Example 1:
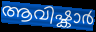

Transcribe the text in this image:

ആവിഷ്കാർ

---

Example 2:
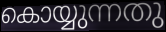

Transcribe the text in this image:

കൊയ്യുന്നതു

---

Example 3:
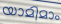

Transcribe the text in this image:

യാമിമാം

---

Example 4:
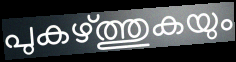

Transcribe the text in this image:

പുകഴ്ത്തുകയും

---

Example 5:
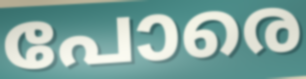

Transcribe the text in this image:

പോരെ